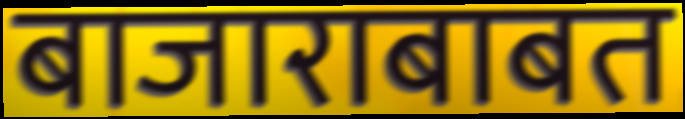
बाजाराबाबत